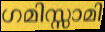
ഗമിസ്സാമി